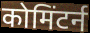
कोमिंटर्न